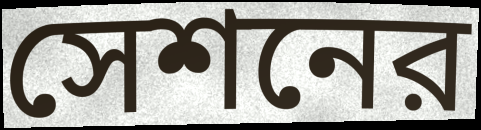
সেশনের